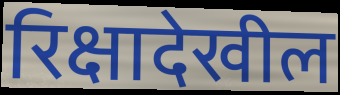
रिक्षादेखील